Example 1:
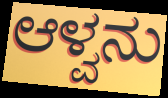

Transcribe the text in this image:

ಆಳ್ವನು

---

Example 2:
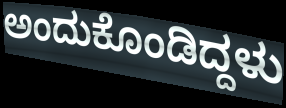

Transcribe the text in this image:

ಅಂದುಕೊಂಡಿದ್ದಳು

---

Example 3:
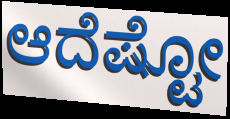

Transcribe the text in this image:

ಆದೆಷ್ಟೋ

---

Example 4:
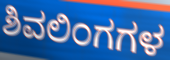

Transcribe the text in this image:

ಶಿವಲಿಂಗಗಳ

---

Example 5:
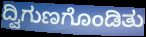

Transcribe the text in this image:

ದ್ವಿಗುಣಗೊಂಡಿತು